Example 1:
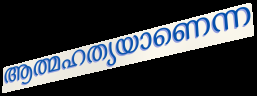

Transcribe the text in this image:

ആത്മഹത്യയാണെന്ന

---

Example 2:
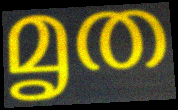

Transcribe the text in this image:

മൃത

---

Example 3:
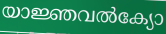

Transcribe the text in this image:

യാജ്ഞവൽക്യോ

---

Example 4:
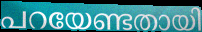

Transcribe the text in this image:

പറയേണ്ടതായി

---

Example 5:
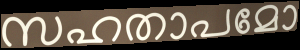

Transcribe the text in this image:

സഹതാപമോ